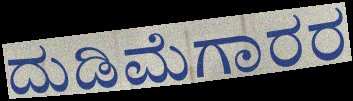
ದುಡಿಮೆಗಾರರ